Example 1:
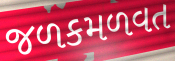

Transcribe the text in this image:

જળકમળવત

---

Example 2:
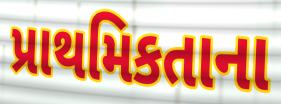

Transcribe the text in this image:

પ્રાથમિકતાના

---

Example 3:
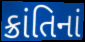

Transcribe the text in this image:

ક્રાંતિનાં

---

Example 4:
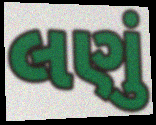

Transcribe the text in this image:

લણું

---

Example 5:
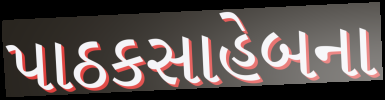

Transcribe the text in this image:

પાઠકસાહેબના